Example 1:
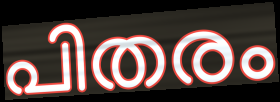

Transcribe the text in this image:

പിതരം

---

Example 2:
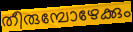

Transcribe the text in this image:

തീരുമ്പോഴേക്കും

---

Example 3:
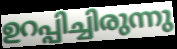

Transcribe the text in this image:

ഉറപ്പിച്ചിരുന്നു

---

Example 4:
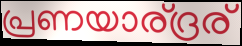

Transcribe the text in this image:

പ്രണയാര്ദ്രര്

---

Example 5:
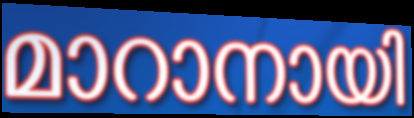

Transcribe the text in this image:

മാറാനായി